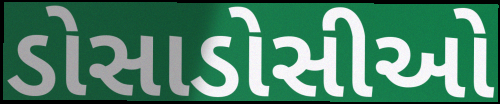
ડોસાડોસીઓ